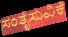
ಸಂತೈಸುವಿಕೆ